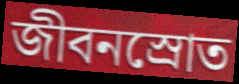
জীবনস্রোত